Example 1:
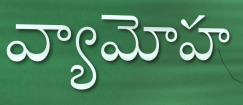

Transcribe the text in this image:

వ్యామోహ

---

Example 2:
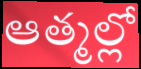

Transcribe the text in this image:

ఆత్మల్లో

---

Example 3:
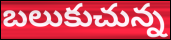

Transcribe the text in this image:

బలుకుచున్న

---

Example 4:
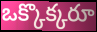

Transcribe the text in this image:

ఒక్కొక్కరూ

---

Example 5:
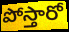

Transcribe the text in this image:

పోస్తారో